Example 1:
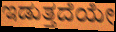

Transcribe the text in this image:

ಇಡುತ್ತದೆಯೇ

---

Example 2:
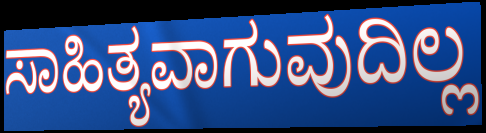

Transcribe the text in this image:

ಸಾಹಿತ್ಯವಾಗುವುದಿಲ್ಲ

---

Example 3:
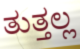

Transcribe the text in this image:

ತುತ್ತಲ್ಲ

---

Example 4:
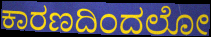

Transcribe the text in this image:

ಕಾರಣದಿಂದಲೋ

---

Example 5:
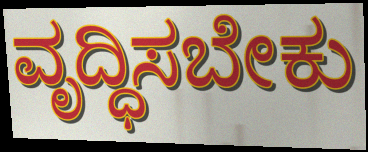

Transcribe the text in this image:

ವೃದ್ಧಿಸಬೇಕು